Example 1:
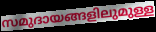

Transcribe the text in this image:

സമുദായങ്ങളിലുമുള്ള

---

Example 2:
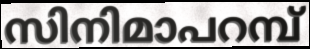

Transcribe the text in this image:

സിനിമാപറമ്പ്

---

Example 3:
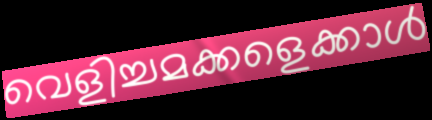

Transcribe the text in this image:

വെളിച്ചമക്കളെക്കാൾ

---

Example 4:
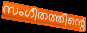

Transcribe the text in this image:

സംഗീതത്തിന്റെ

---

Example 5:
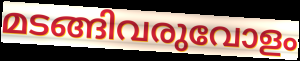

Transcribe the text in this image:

മടങ്ങിവരുവോളം